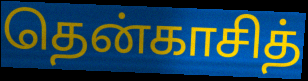
தென்காசித்